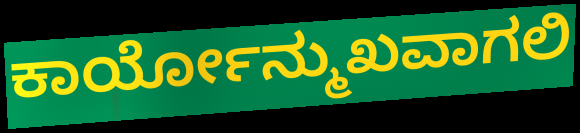
ಕಾರ್ಯೋನ್ಮುಖವಾಗಲಿ